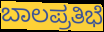
ಬಾಲಪ್ರತಿಭೆ